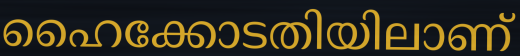
ഹൈക്കോടതിയിലാണ്